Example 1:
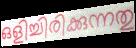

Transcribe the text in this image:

ഒളിച്ചിരിക്കുന്നതു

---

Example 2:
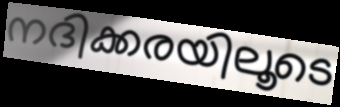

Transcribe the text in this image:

നദിക്കരയിലൂടെ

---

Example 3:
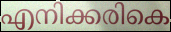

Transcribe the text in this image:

എനിക്കരികെ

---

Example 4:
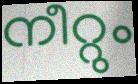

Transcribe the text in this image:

നീറ്റും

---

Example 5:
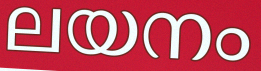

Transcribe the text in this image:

ലയനം